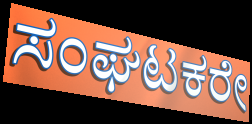
ಸಂಘಟಕರೇ